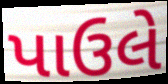
પાઉલે